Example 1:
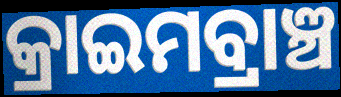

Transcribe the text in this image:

କ୍ରାଇମବ୍ରାଞ୍ଚ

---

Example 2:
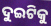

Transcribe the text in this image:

ଦୁଇଟିକୁ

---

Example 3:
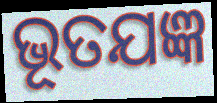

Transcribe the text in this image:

ଭୂତଯଜ୍ଞ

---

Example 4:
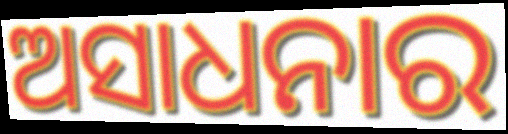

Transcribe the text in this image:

ଅସାଧନାର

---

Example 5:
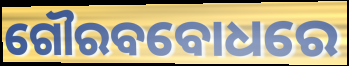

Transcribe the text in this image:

ଗୌରବବୋଧରେ